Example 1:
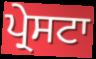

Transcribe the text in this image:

ਪ੍ਰੇਸਟਾ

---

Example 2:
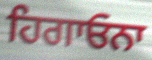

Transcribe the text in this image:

ਹਿਗਾਓਨਾ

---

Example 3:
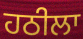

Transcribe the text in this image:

ਹਠੀਲਾ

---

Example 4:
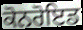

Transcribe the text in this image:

ਕੋਨਰੋਇਡ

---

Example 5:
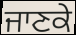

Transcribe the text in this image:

ਜਾਣਕੇ